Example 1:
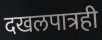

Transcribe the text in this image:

दखलपात्रही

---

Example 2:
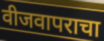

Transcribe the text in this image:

वीजवापराचा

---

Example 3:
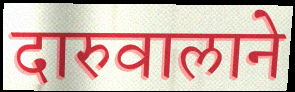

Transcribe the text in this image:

दारुवालाने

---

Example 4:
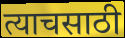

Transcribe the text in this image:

त्याचसाठी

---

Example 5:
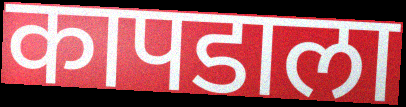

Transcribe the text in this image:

कापडाला